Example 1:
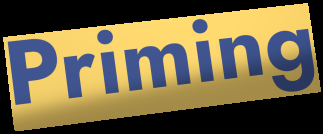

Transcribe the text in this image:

Priming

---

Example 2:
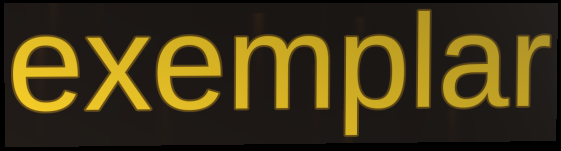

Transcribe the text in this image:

exemplar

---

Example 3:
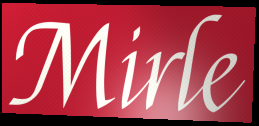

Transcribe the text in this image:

Mirle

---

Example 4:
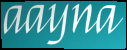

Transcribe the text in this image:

aayna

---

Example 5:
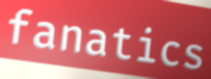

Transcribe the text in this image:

fanatics